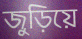
জুড়িয়ে